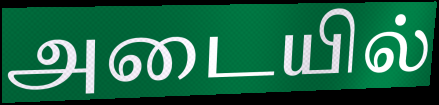
அடையில்